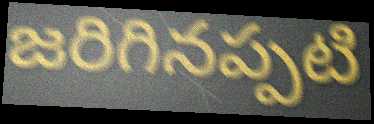
జరిగినప్పటి